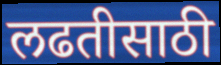
लढतीसाठी